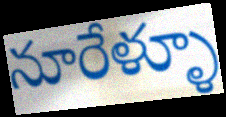
నూరేళ్ళూ